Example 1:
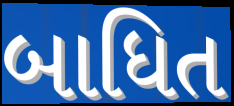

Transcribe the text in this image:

બાધિત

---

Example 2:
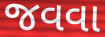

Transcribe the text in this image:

જવવા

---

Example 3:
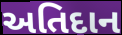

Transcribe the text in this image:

અતિદાન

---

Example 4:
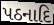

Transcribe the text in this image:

પઠનાદિ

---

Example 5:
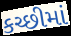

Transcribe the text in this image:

કચ્છીમાં